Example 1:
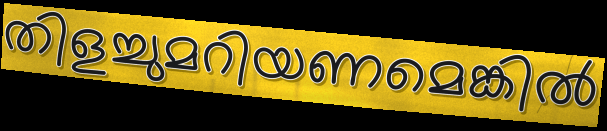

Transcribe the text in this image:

തിളച്ചുമറിയണമെങ്കിൽ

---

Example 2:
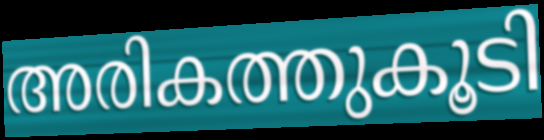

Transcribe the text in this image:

അരികത്തുകൂടി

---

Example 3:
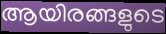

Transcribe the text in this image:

ആയിരങ്ങളുടെ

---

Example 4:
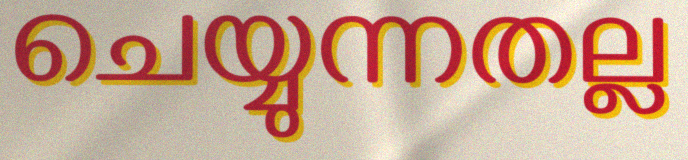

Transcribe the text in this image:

ചെയ്യുന്നതല്ല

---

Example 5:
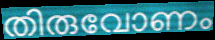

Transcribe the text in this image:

തിരുവോണം